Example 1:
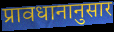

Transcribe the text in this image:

प्रावधानानुसार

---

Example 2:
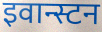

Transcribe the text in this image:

इवान्स्टन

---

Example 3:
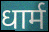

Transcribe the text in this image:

धार्म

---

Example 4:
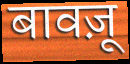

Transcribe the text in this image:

बावज़ू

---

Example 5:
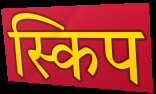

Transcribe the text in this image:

स्किप